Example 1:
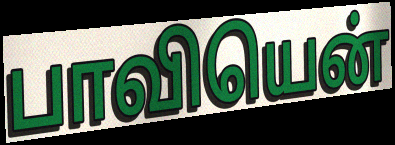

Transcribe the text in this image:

பாவியென்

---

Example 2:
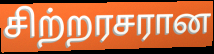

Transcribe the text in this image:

சிற்றரசரான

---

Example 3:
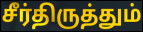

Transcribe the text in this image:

சீர்திருத்தும்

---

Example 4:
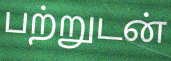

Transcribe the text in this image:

பற்றுடன்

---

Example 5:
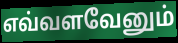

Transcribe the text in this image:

எவ்வளவேனும்